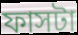
ফাসটা